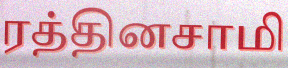
ரத்தினசாமி